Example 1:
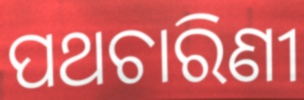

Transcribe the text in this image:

ପଥଚାରିଣୀ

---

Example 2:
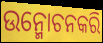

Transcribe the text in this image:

ଉନ୍ମୋଚନକରି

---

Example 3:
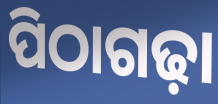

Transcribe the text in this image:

ପିଠାଗଢ଼ା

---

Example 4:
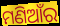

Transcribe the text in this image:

ମଣିଆଁର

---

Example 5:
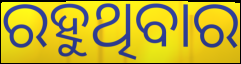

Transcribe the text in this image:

ରହୁଥିବାର